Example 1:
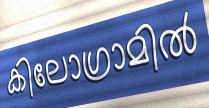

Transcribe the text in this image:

കിലോഗ്രാമിൽ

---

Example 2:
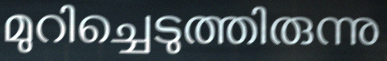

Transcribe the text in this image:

മുറിച്ചെടുത്തിരുന്നു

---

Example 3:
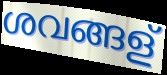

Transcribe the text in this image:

ശവങ്ങള്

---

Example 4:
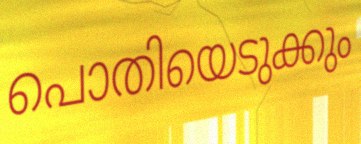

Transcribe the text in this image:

പൊതിയെടുക്കും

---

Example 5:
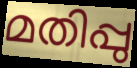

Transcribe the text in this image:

മതിപ്പു